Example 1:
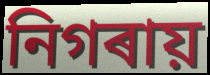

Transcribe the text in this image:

নিগৰায়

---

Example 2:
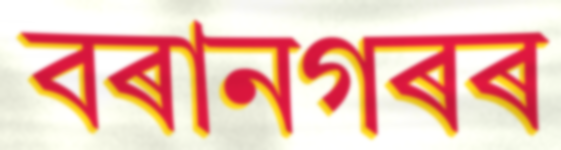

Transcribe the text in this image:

বৰানগৰৰ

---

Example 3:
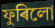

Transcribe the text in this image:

ফুৰিলো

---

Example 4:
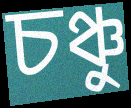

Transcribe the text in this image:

চঞ্চু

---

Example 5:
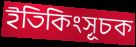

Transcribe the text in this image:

ইতিকিংসূচক